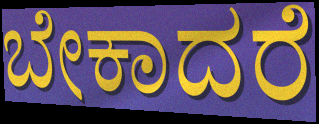
ಬೇಕಾದರೆ